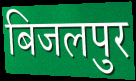
बिजलपुर